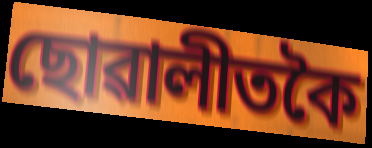
ছোৱালীতকৈ